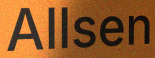
Allsen